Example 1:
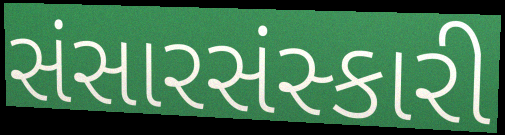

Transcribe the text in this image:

સંસારસંસ્કારી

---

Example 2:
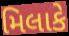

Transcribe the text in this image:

મિલાકે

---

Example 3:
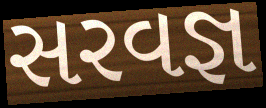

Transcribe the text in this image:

સરવજ્ઞ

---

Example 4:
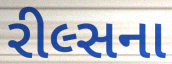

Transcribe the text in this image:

રીલ્સના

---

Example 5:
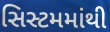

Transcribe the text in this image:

સિસ્ટમમાંથી